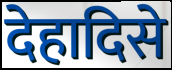
देहादिसे